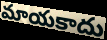
మాయకాదు